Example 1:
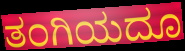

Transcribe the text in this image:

ತಂಗಿಯದೂ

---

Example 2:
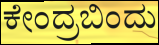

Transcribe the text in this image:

ಕೇಂದ್ರಬಿಂದು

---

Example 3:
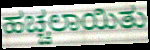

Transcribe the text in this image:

ಹಚ್ಚಲಾಯಿತು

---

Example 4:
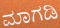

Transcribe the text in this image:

ಮಾಗಡಿ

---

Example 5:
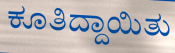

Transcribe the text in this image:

ಕೂತಿದ್ದಾಯಿತು